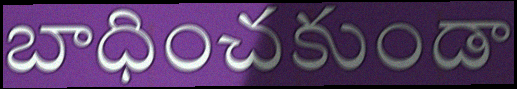
బాధించకుండా